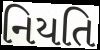
નિયતિ